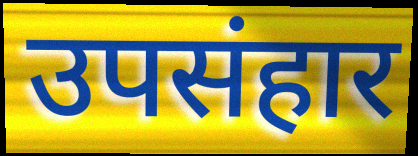
उपसंहार